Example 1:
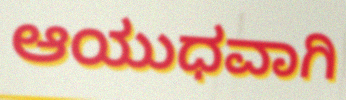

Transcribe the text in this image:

ಆಯುಧವಾಗಿ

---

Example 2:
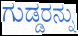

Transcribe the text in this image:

ಗುಡ್ಡರನ್ನು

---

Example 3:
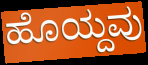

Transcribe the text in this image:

ಹೊಯ್ದವು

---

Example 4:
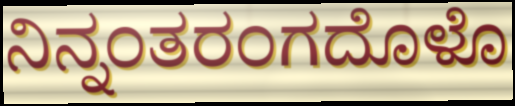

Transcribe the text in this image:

ನಿನ್ನಂತರಂಗದೊಳೊ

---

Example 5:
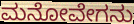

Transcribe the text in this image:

ಮನೋವೇಗನು